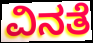
ವಿನತೆ